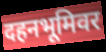
दहनभूमिवर